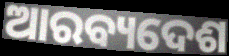
ଆରବ୍ୟଦେଶ